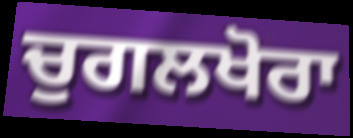
ਚੁਗਲਖੋਰਾ